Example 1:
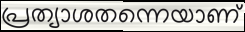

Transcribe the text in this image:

പ്രത്യാശതന്നെയാണ്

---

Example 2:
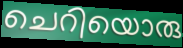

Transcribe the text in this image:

ചെറിയൊരു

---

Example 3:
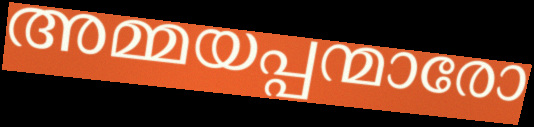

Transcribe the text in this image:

അമ്മയപ്പന്മാരോ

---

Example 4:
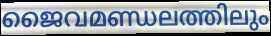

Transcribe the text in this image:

ജൈവമണ്ഡലത്തിലും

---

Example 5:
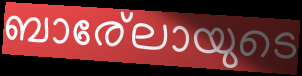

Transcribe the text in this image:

ബാര്ലോയുടെ